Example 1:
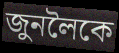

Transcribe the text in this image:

জুনলৈকে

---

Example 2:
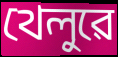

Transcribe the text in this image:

থেলুৱে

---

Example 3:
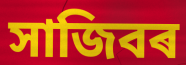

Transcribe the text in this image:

সাজিবৰ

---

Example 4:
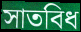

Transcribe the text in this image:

সাতবিধ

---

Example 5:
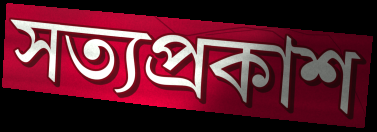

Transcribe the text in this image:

সত্যপ্ৰকাশ